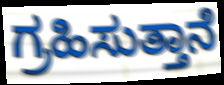
ಗ್ರಹಿಸುತ್ತಾನೆ